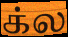
க்ல